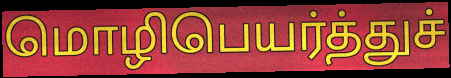
மொழிபெயர்த்துச்